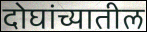
दोघांच्यातील